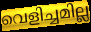
വെളിച്ചമില്ല